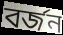
বৰ্জন